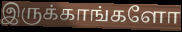
இருக்காங்களோ